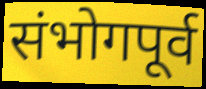
संभोगपूर्व